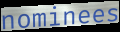
nominees